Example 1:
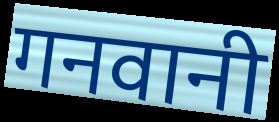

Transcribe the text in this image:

गनवानी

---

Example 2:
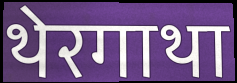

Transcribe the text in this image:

थेरगाथा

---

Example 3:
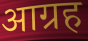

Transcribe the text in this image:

आग्रह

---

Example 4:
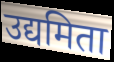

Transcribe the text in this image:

उद्यमिता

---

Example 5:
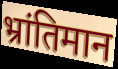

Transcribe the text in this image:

भ्रांतिमान